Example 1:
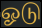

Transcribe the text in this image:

ஓடு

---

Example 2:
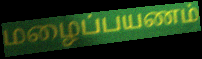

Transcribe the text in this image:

மழைப்பயணம்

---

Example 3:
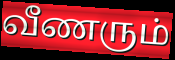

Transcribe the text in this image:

வீணரும்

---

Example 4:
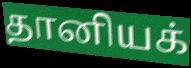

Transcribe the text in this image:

தானியக்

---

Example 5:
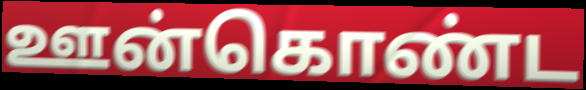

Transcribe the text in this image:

ஊன்கொண்ட